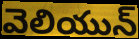
వెలియున్